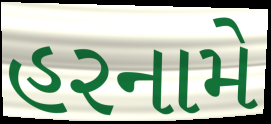
હરનામે